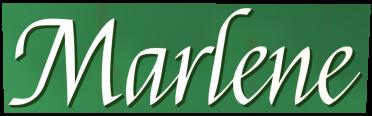
Marlene